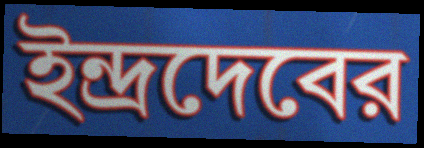
ইন্দ্রদেবের